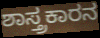
ಶಾಸ್ತ್ರಕಾರನ